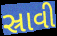
સ્રાવી